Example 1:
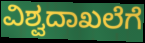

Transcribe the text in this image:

ವಿಶ್ವದಾಖಲೆಗೆ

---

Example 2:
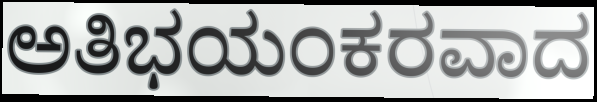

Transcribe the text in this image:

ಅತಿಭಯಂಕರವಾದ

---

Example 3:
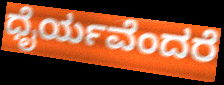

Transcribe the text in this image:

ಧೈರ್ಯವೆಂದರೆ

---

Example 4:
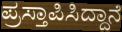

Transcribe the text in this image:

ಪ್ರಸ್ತಾಪಿಸಿದ್ದಾನೆ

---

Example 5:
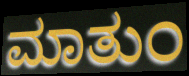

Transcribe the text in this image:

ಮಾತುಂ